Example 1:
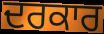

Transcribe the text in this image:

ਦਰਕਾਰ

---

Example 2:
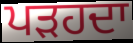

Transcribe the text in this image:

ਪੜਹਦਾ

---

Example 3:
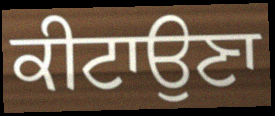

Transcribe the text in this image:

ਕੀਟਾਉਣਾ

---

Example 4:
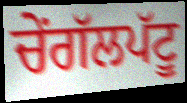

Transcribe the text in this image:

ਚੇਂਗੱਲਪੱਟੂ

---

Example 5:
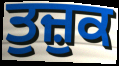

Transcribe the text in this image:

ਤੁਜ਼ੁਕ